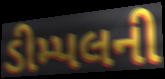
ડીમ્પલની